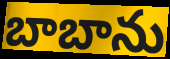
బాబాను